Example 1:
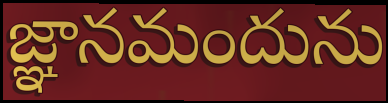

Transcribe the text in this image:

జ్ఞానమందును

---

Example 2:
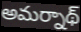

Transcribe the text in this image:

అమర్నాథ్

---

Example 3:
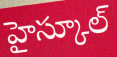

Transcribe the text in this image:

హైస్కూల్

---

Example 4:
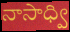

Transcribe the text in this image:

నాసాధ్వి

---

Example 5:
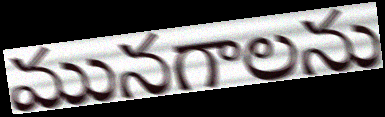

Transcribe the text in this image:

మునగాలను